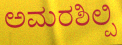
ಅಮರಶಿಲ್ಪಿ